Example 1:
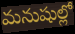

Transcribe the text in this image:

మనుషుల్లో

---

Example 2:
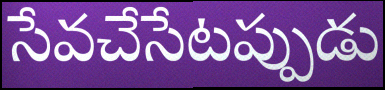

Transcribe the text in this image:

సేవచేసేటప్పుడు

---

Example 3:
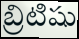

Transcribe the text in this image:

బ్రిటిషు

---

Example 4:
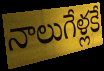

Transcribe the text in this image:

నాలుగేళ్లకే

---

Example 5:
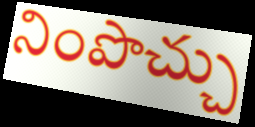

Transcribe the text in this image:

నింపొచ్చు